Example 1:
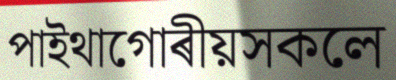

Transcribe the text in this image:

পাইথাগোৰীয়সকলে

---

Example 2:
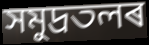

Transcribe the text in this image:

সমুদ্ৰতলৰ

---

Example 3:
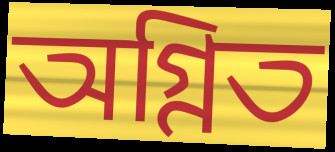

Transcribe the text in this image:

অগ্নিত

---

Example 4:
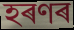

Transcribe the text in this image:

হৰণৰ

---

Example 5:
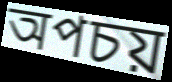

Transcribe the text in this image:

অপচয়